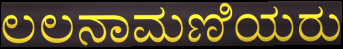
ಲಲನಾಮಣಿಯರು